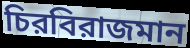
চিরবিরাজমান